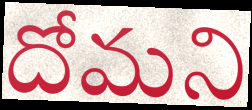
దోమని